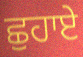
ਛੁਹਾਏ